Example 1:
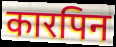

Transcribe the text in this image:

कारपिन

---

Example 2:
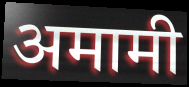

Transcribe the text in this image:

अमामी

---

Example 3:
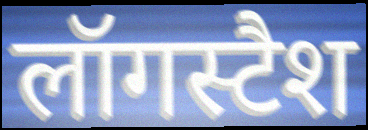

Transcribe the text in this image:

लॉगस्टैश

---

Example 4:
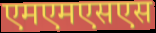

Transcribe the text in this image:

एमएमएसएस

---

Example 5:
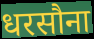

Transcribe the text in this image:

धरसौना